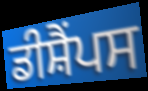
ਡੀਸ਼ੈਂਪਸ